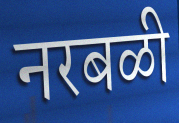
नरबळी